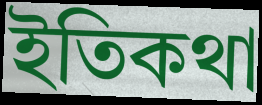
ইতিকথা